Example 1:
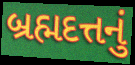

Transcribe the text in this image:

બ્રહ્મદત્તનું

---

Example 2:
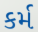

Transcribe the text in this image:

કર્મ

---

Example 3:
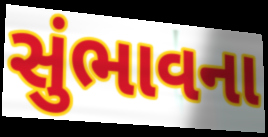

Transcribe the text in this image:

સુંભાવના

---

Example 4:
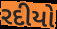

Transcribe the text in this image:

રદીયો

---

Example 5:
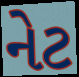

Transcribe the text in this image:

નેટ